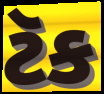
ટૅક